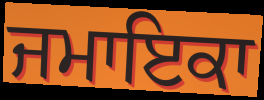
ਜਮਾਇਕਾ